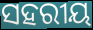
ସହରୀୟ